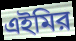
এইমির